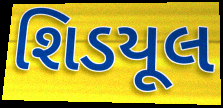
શિડયૂલ